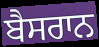
ਬੈਸਰਾਨ